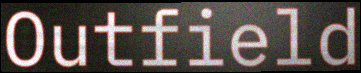
Outfield